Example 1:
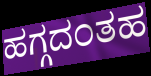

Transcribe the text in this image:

ಹಗ್ಗದಂತಹ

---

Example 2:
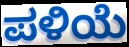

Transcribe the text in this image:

ಪಳಿಯೆ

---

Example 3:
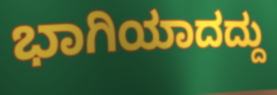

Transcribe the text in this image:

ಭಾಗಿಯಾದದ್ದು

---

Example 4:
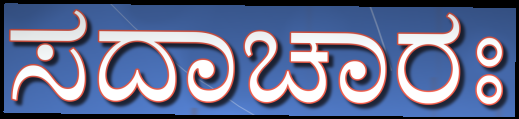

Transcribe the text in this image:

ಸದಾಚಾರಃ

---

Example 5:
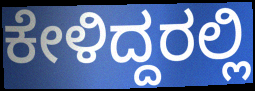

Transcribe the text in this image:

ಕೇಳಿದ್ದರಲ್ಲಿ